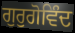
ਗੁਰੁਗੋਵਿੰਦ